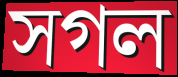
সগল